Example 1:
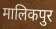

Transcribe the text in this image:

मालिकपुर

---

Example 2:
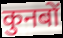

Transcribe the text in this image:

कुनबों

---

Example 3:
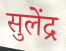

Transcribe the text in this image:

सुलेंद्र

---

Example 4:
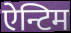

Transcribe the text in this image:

ऐन्टिम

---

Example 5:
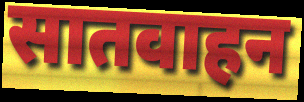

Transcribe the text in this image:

सातवाहन